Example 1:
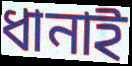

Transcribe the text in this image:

ধানাই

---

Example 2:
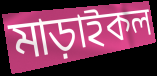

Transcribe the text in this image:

মাড়াইকল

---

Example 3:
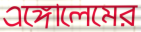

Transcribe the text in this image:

এঙ্গোলেমের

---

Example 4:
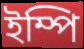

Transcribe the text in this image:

ইম্পি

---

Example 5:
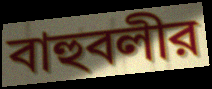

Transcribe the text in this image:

বাহুবলীর